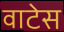
वाटेस